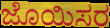
ಜೊಯಿಸರ